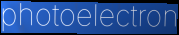
photoelectron